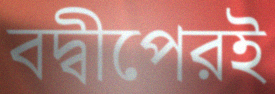
বদ্বীপেরই